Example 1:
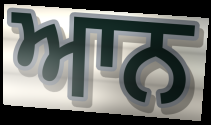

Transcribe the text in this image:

ਆਨ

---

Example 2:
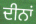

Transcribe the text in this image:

ਦੀਨਾਂ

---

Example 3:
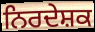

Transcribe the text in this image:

ਨਿਰਦੇਸ਼ਕ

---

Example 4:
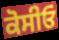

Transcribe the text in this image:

ਕੋਸੀਓ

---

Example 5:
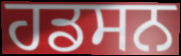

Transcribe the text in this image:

ਹਡਸਨ